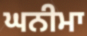
ਘਨੀਮਾ